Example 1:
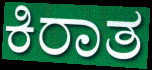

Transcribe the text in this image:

ಕಿರಾತ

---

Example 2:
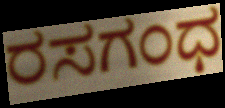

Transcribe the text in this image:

ರಸಗಂಧ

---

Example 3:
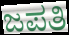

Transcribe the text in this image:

ಜಪತಿ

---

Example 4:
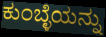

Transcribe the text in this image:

ಕುಂಬ್ಳೆಯನ್ನು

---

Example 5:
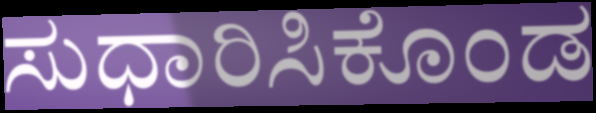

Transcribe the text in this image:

ಸುಧಾರಿಸಿಕೊಂಡ